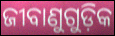
ଜୀବାଣୁଗୁଡ଼ିକ